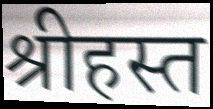
श्रीहस्त